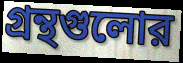
গ্রন্থগুলোর